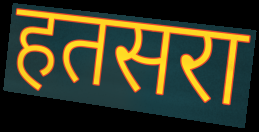
हतसरा